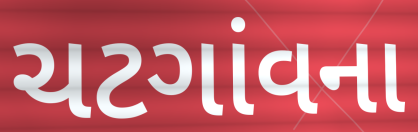
ચટગાંવના